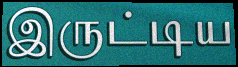
இருட்டிய